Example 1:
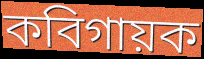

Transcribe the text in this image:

কবিগায়ক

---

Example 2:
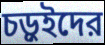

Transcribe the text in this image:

চড়ুইদের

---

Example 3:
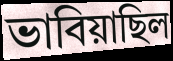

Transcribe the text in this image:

ভাবিয়াছিল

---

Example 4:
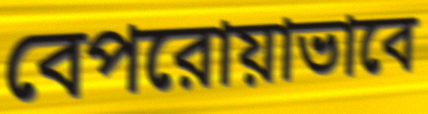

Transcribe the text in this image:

বেপরোয়াভাবে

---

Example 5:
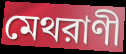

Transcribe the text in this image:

মেথরাণী